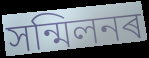
সন্মিলনৰ